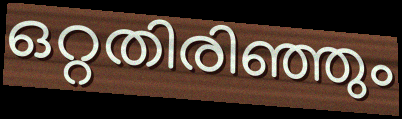
ഒറ്റതിരിഞ്ഞും